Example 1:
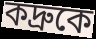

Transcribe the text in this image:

কদ্রুকে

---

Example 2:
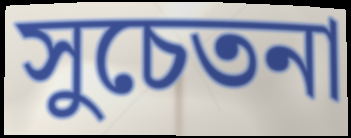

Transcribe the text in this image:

সুচেতনা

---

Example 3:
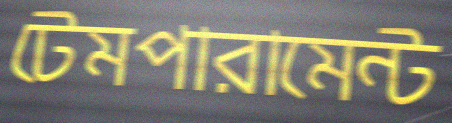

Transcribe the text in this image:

টেমপারামেন্ট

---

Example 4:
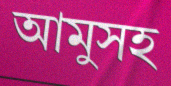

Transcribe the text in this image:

আমুসহ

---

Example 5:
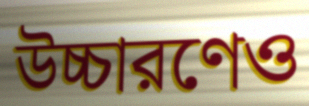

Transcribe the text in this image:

উচ্চারণেও